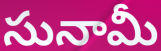
సునామీ